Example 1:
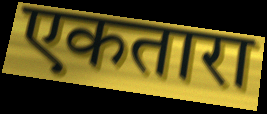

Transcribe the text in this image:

एकतारा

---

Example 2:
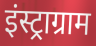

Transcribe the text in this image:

इंस्ट्राग्राम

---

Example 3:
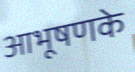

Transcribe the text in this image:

आभूषणके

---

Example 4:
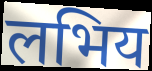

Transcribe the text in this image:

लभिय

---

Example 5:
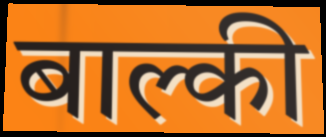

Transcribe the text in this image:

बाल्की